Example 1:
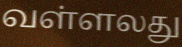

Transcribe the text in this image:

வள்ளலது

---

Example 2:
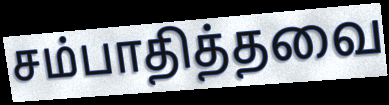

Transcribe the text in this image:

சம்பாதித்தவை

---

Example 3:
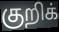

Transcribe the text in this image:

குறிக்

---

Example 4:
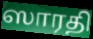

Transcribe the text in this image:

ஸாரதி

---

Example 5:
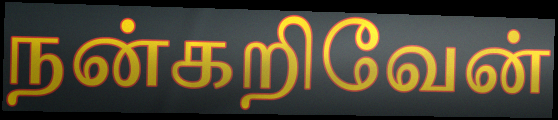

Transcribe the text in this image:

நன்கறிவேன்